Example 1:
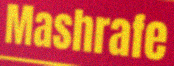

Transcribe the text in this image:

Mashrafe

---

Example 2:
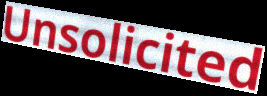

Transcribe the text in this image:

Unsolicited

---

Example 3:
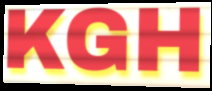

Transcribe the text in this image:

KGH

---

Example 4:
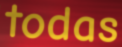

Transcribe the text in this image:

todas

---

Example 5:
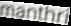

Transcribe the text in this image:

manthri